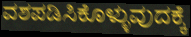
ವಶಪಡಿಸಿಕೊಳ್ಳುವುದಕ್ಕೆ